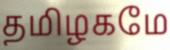
தமிழகமே